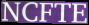
NCFTE